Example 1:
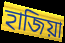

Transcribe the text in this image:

হাজিয়া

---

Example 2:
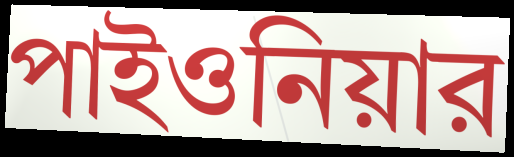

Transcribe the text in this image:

পাইওনিয়ার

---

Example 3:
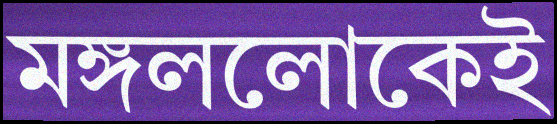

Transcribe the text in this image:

মঙ্গললোকেই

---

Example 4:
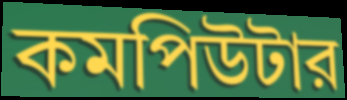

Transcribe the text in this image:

কমপিউটার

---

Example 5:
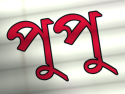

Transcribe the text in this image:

পুপু